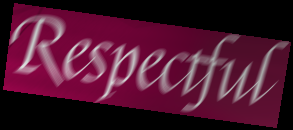
Respectful